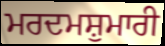
ਮਰਦਮਸ਼ੁਮਾਰੀ